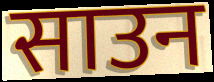
साउन